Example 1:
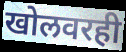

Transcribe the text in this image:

खोलवरही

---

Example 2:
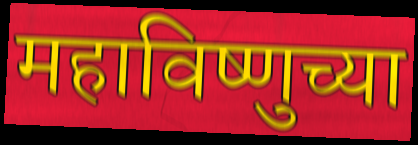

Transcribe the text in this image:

महाविष्णुच्या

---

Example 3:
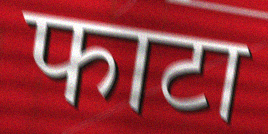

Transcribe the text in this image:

फाटा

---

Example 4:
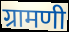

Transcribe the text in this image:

ग्रामणी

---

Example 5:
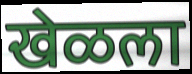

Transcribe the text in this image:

खेळला